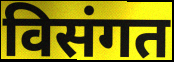
विसंगत